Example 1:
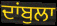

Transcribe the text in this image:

ਦਾਂਬੁਲਾ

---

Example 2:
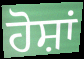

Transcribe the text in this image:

ਹੋਸ਼ਾਂ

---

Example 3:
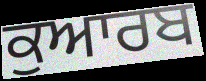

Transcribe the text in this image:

ਕੁਆਰਬ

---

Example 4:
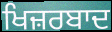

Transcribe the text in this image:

ਖਿਜ਼ਰਬਾਦ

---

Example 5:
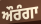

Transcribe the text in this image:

ਔਰੰਗਾ